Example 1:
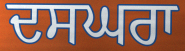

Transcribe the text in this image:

ਦਸਘਰਾ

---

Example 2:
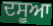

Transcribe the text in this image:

ਦਸੂਆ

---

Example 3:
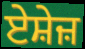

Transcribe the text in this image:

ਏਸ਼ੇਜ਼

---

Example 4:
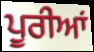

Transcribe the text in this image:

ਪੂਰੀਆਂ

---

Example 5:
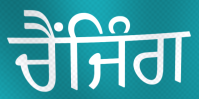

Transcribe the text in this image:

ਚੈਂਜਿੰਗ